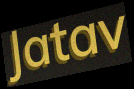
Jatav